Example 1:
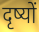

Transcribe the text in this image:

दृष्यों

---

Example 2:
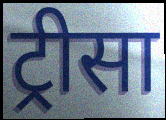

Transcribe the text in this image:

ट्रीसा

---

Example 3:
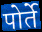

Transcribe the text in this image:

पोर्ते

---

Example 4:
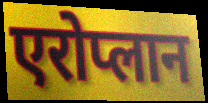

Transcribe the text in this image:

एरोप्लान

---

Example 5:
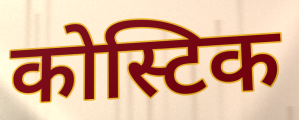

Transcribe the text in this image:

कोस्टिक